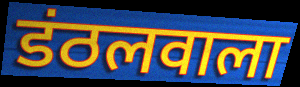
डंठलवाला